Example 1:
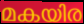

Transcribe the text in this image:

മകയിര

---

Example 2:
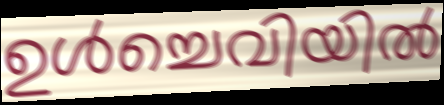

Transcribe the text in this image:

ഉൾച്ചെവിയിൽ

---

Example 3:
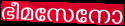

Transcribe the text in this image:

ഭീമസേനോ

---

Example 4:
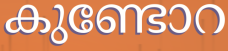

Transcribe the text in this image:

കുണ്ടോറ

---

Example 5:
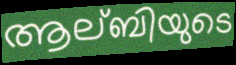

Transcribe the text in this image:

ആല്ബിയുടെ